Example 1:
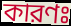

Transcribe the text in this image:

কারণঃ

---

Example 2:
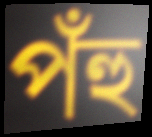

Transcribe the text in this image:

পঁহু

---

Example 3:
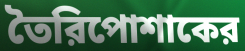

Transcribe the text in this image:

তৈরিপোশাকের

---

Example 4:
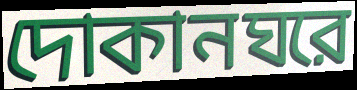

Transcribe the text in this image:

দোকানঘরে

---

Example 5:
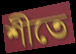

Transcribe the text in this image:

শীতে